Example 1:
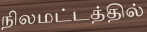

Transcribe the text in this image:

நிலமட்டத்தில்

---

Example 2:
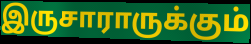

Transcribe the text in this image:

இருசாராருக்கும்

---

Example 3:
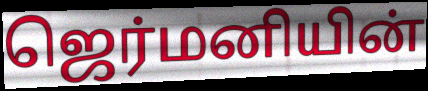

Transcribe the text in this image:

ஜெர்மனியின்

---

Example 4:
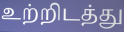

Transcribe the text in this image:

உற்றிடத்து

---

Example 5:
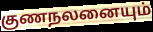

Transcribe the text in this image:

குணநலனையும்